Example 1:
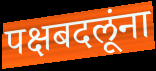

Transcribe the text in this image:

पक्षबदलूंना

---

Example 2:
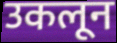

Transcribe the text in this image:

उकलून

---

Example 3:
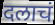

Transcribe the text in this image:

दलाचं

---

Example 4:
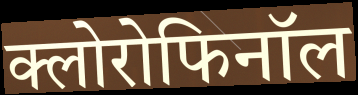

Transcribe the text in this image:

क्लोरोफिनॉल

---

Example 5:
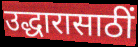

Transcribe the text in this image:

उद्धारासाठीं